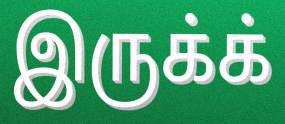
இருக்க்